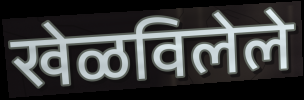
खेळविलेले